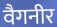
वैगनीर